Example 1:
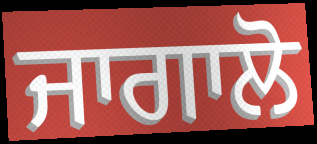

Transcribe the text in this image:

ਜਾਗਾਲੋ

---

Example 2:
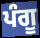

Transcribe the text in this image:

ਪੰਗੂ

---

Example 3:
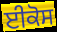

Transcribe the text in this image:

ਈਕੋਸ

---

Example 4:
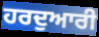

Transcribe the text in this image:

ਹਰਦੁਆਰੀ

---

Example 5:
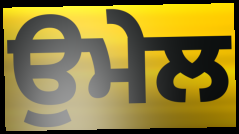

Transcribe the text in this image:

ਉਮੇਲ